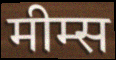
मीम्‍स